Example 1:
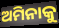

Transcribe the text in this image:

ଅମିନାକୁ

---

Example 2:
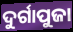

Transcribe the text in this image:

ଦୁର୍ଗାପୁଜା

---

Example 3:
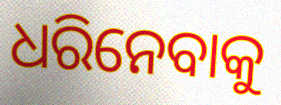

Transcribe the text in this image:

ଧରିନେବାକୁ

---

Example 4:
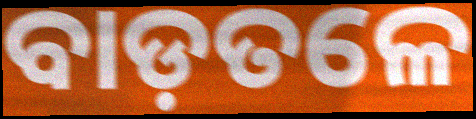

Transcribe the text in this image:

ବାଡ଼ତଳେ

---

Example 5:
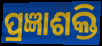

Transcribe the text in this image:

ପ୍ରଜ୍ଞାଶକ୍ତି